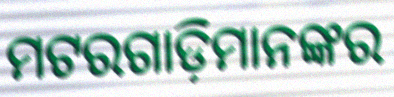
ମଟରଗାଡ଼ିମାନଙ୍କର